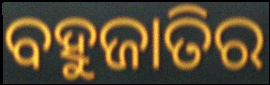
ବହୁଜାତିର